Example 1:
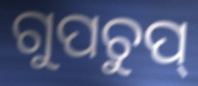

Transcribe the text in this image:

ଗୁପଚୁପ୍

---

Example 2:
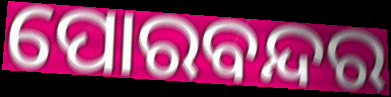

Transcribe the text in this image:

ପୋରବନ୍ଦର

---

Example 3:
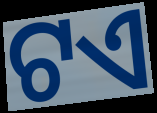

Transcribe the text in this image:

ଟଏ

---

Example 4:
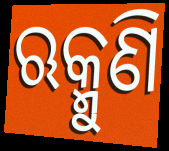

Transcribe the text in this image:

ଋକ୍ମୁଣି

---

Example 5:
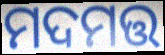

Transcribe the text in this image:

ମଦମତ୍ତ